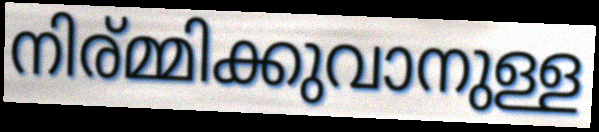
നിര്മ്മിക്കുവാനുള്ള